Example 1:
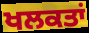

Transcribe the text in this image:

ਖਲਕਤਾਂ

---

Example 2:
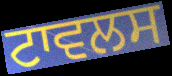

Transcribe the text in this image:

ਟਾਵਲਸ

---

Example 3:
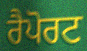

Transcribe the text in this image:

ਰੈਪੋਰਟ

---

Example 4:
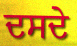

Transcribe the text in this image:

ਦਸਦੇ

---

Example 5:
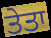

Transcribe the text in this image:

ਤੇਤਾ